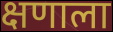
क्षणाला